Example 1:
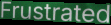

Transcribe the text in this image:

Frustrated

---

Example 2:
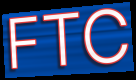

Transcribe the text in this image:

FTC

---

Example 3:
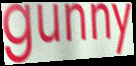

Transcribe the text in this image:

gunny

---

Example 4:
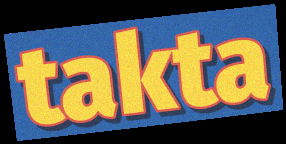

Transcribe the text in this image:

takta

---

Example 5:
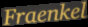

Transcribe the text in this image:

Fraenkel